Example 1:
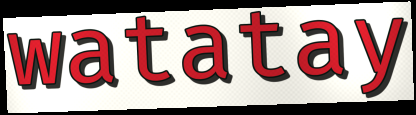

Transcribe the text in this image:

watatay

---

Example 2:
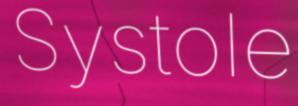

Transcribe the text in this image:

Systole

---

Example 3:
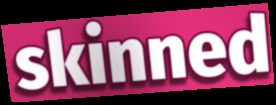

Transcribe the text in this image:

skinned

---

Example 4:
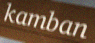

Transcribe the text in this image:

kamban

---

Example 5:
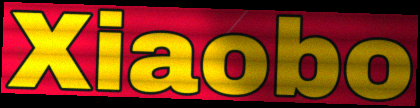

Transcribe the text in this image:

Xiaobo